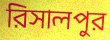
রিসালপুর